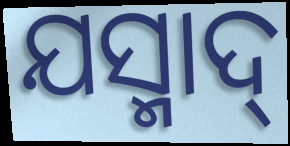
ଯସ୍ମାଦ୍